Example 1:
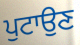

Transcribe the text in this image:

ਪੁਟਾਉਣ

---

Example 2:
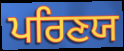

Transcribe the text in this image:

ਪਰਿਣਯ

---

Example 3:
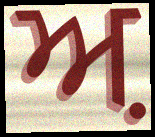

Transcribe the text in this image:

ਅ਼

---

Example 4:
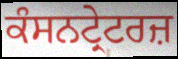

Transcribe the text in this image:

ਕੰਸਨਟ੍ਰੇਟਰਜ਼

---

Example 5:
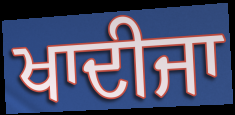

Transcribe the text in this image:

ਖਾਦੀਜਾ